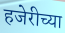
हजेरीच्या